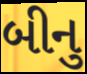
બીનુ